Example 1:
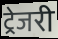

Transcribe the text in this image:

ट्रेजरी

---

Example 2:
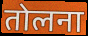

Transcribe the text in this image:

तोलना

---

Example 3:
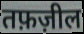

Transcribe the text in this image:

तफ़ज़ील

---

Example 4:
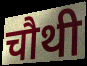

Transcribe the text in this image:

चौथी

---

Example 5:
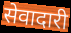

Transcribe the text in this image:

सेवादारी